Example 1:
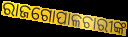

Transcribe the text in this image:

ରାଜଗୋପାଳଚାରୀଙ୍କ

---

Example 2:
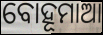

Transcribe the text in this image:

ବୋହୂମାଆ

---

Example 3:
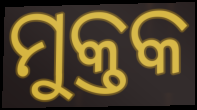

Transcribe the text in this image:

ମୁକ୍ତକ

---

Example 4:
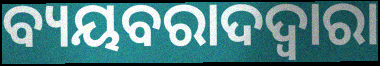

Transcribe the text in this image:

ବ୍ୟୟବରାଦଦ୍ଵାରା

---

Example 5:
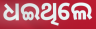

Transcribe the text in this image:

ଧଇଥିଲେ